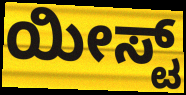
ಯೀಸ್ಟ್